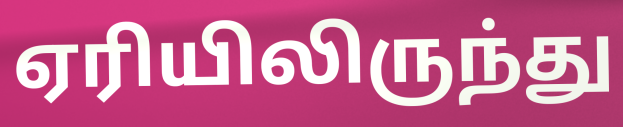
ஏரியிலிருந்து